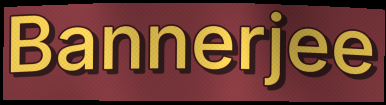
Bannerjee